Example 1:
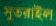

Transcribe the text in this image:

সুতরাইল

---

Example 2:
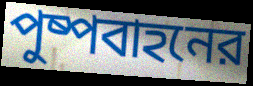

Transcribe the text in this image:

পুষ্পবাহনের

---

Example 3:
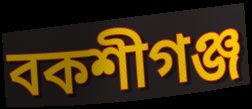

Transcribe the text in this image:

বকশীগঞ্জ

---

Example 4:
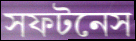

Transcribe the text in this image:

সফটনেস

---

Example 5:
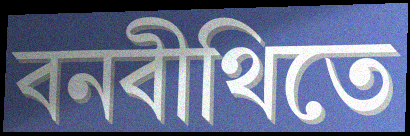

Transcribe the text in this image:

বনবীথিতে